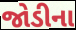
જોડીના